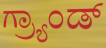
ಗ್ರ್ಯಾಂಡ್